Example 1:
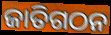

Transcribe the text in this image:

ଜାତିଗଠନ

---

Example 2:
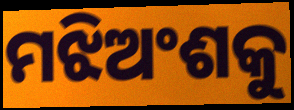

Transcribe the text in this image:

ମଝିଅଂଶକୁ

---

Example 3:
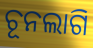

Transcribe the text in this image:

ଚୂନଲାଗି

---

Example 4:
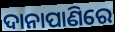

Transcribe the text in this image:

ଦାନାପାଣିରେ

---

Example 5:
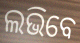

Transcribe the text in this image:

ଲଭିବେ